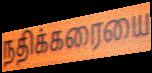
நதிக்கரையை